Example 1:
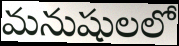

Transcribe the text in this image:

మనుషులలో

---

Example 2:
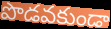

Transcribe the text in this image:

పొడవకుండా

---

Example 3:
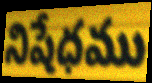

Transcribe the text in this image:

నిషేధము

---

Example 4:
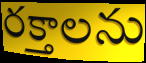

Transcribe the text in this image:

రక్తాలను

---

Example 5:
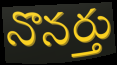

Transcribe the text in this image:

నొనర్తు